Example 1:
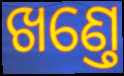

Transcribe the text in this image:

ଖଣ୍ତେ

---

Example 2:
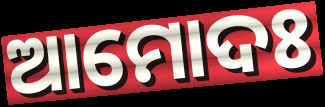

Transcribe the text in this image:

ଆମୋଦଃ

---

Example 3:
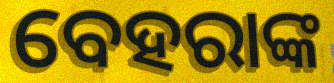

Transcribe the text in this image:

ବେହରାଙ୍କ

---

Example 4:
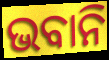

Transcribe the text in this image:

ଭବାନି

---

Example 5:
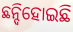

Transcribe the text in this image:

ଛନ୍ଦିହୋଇଛି